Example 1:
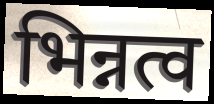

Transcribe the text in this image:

भिन्नत्व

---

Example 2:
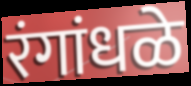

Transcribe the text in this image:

रंगांधळे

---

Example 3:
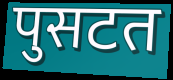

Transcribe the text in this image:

पुसटत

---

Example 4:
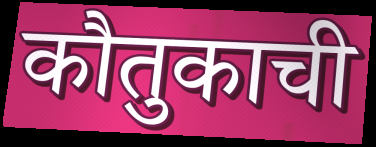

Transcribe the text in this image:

कौतुकाची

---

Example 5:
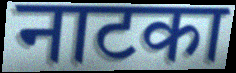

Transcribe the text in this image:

नाटका